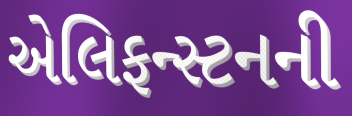
એલિફન્સ્ટનની